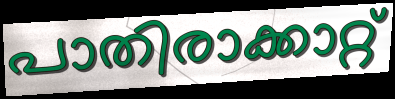
പാതിരാക്കാറ്റ്